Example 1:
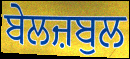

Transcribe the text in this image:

ਬੇਲਜ਼ਬੁਲ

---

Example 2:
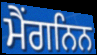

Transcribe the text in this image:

ਮੈਂਗਨਿਨ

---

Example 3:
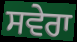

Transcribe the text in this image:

ਸਵੇਰਾ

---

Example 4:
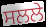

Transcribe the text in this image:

ਸਲਲੇ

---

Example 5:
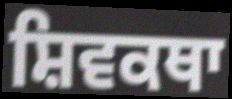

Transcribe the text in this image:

ਸ਼ਿਵਕਥਾ